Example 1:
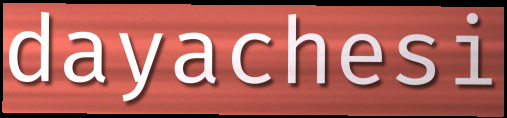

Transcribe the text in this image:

dayachesi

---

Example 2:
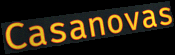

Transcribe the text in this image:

Casanovas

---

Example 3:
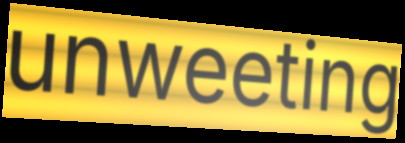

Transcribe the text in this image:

unweeting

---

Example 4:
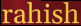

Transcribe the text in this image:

rahish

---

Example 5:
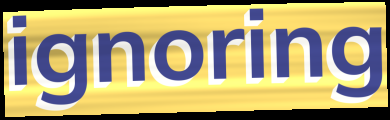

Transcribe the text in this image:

ignoring